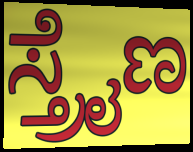
ಸ್ತ್ರೈಣ